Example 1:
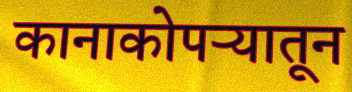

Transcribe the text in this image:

कानाकोपऱ्यातून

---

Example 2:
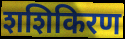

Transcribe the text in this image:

शशिकिरण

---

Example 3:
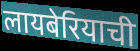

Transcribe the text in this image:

लायबेरियाची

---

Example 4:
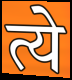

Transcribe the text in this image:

त्ये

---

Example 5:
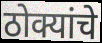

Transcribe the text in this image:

ठोक्यांचे